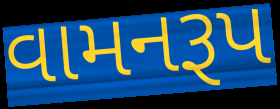
વામનરૂપ